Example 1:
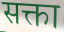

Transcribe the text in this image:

सक्ता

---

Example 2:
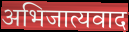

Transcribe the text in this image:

अभिजात्यवाद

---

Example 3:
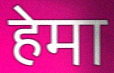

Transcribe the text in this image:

हेमा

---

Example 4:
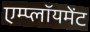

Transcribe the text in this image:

एम्प्लॉयमेंट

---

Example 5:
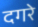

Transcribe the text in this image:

दगरे